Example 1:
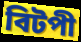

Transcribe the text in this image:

বিটপী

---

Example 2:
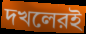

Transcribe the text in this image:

দখলেরই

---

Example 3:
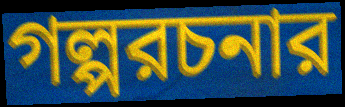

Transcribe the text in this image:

গল্পরচনার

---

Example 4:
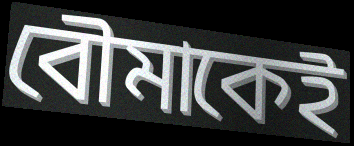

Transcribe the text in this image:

বৌমাকেই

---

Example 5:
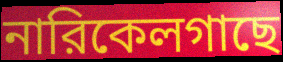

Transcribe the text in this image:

নারিকেলগাছে